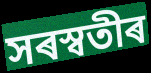
সৰস্বতীৰ